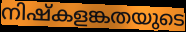
നിഷ്കളങ്കതയുടെ